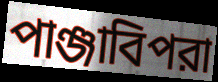
পাঞ্জাবিপরা